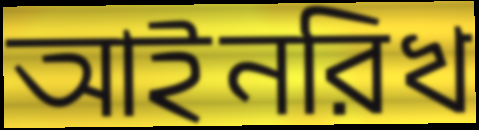
আইনরিখ